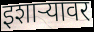
इशार्‍यावर